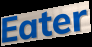
Eater